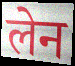
लेन